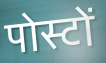
पोस्टों